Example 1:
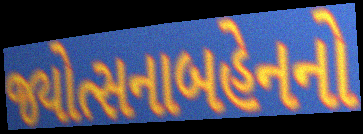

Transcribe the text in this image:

જ્યોત્સનાબહેનનો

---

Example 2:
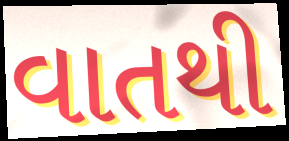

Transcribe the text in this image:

વાતથી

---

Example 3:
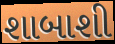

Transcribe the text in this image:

શાબાશી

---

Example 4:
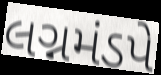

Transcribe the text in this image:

લગ્નમંડપે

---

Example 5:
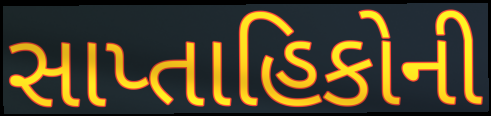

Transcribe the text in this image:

સાપ્તાહિકોની